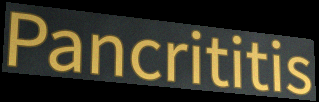
Pancrititis